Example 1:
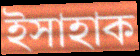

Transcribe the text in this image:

ইসাহাক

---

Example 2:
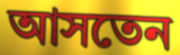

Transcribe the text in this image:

আসতেন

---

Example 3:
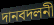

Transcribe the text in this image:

দানবদলনী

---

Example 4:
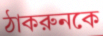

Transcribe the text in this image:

ঠাকরুনকে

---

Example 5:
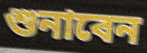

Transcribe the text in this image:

শুনাবেন